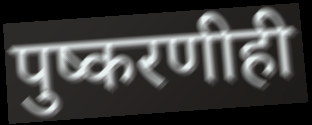
पुष्करणीही